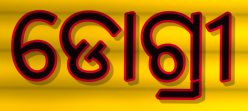
ଡୋଗ୍ରୀ